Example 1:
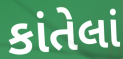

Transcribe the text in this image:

કાંતેલાં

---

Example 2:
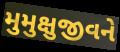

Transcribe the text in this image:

મુમુક્ષુજીવને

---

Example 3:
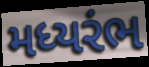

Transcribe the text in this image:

મધ્યરંભ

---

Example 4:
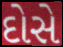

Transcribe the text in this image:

દોસે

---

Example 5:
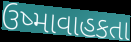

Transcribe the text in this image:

ઉષ્માવાહકતા